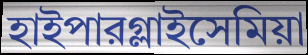
হাইপারগ্লাইসেমিয়া